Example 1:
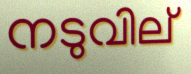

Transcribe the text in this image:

നടുവില്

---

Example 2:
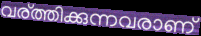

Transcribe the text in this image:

വര്ത്തിക്കുന്നവരാണ്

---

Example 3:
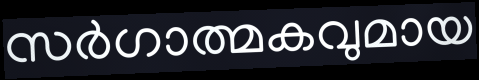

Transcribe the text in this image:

സർഗാത്മകവുമായ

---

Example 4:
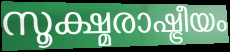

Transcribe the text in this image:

സൂക്ഷ്മരാഷ്ട്രീയം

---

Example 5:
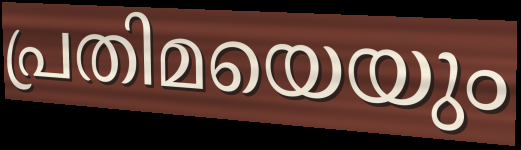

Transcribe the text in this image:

പ്രതിമയെയും